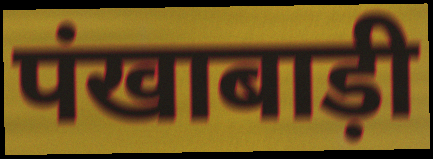
पंखाबाड़ी